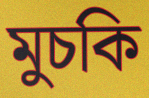
মুচকি